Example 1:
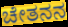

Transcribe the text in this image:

ಚೇತನನ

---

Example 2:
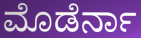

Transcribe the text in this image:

ಮೊಡೆರ್ನಾ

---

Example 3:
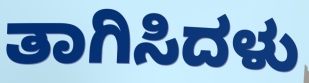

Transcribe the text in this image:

ತಾಗಿಸಿದಳು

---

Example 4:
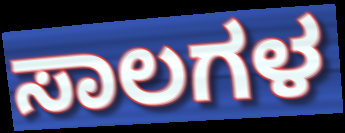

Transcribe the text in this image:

ಸಾಲಗಳ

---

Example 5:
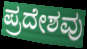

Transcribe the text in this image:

ಪ್ರದೇಶವು